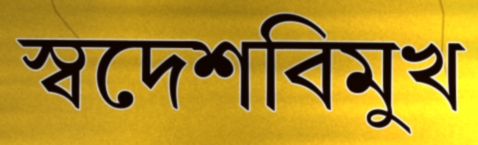
স্বদেশবিমুখ